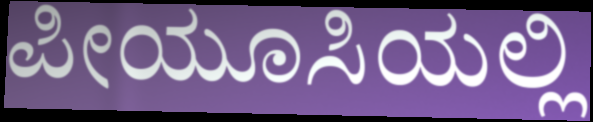
ಪೀಯೂಸಿಯಲ್ಲಿ